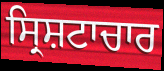
ਸ੍ਰਿਸ਼ਟਾਚਾਰ